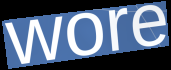
wore